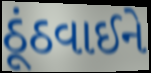
ઠૂંઠવાઈને